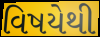
વિષયેથી